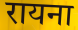
रायना